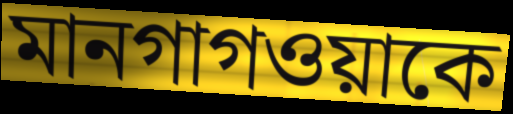
মানগাগওয়াকে